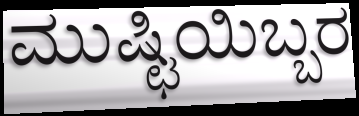
ಮುಷ್ಟಿಯಿಬ್ಬರ